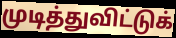
முடித்துவிட்டுக்